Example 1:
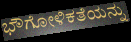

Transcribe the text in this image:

ಭೌಗೋಳಿಕತೆಯನ್ನು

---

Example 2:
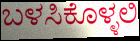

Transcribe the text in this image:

ಬಳಸಿಕೊಳ್ಳಲಿ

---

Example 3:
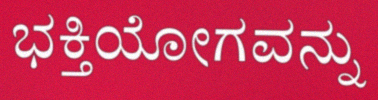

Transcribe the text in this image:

ಭಕ್ತಿಯೋಗವನ್ನು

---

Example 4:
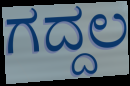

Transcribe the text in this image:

ಗದ್ದಲ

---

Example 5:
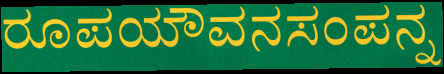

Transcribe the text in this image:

ರೂಪಯೌವನಸಂಪನ್ನ